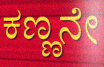
ಕಣ್ಣನೇ